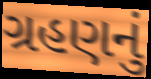
ગ્રહણનું